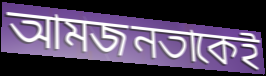
আমজনতাকেই